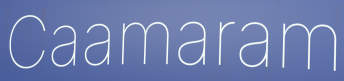
Caamaram